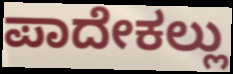
ಪಾದೇಕಲ್ಲು